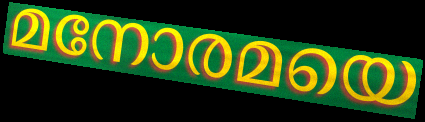
മനോരമയെ